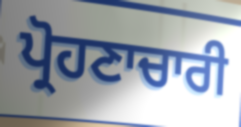
ਪ੍ਰੋਹਣਾਚਾਰੀ